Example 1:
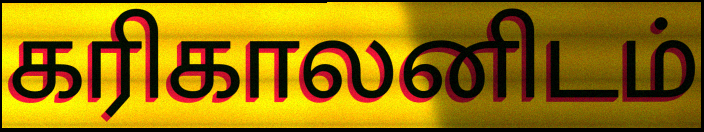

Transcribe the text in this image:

கரிகாலனிடம்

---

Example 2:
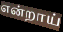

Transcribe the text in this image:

என்றாய்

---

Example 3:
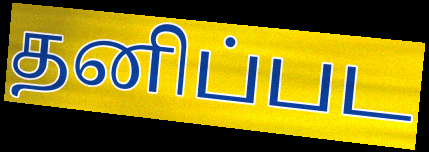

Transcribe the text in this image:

தனிப்பட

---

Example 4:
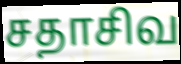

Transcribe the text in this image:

சதாசிவ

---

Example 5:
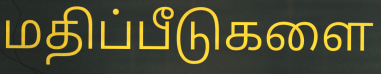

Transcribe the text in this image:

மதிப்பீடுகளை